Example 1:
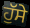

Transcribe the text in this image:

ਹੁੱਸੇ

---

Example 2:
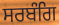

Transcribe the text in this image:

ਸਰਬੰਗਿ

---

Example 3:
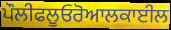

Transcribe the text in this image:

ਪੌਲੀਫਲੂਓਰੋਆਲਕਾਈਲ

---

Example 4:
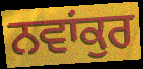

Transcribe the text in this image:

ਨਵਾਂਕੁਰ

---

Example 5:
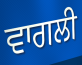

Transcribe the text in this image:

ਵਾਗਲੀ